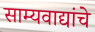
साम्यवाद्यांचे